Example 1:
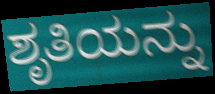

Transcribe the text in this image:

ಶೃತಿಯನ್ನು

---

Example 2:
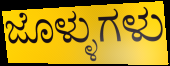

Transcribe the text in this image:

ಜೊಳ್ಳುಗಳು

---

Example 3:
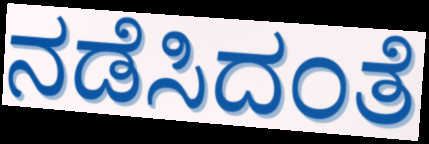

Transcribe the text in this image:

ನಡೆಸಿದಂತೆ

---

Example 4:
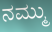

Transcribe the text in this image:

ನಮ್ಮು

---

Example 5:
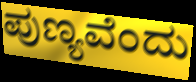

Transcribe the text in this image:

ಪುಣ್ಯವೆಂದು